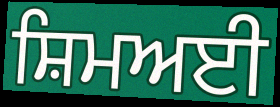
ਸ਼ਿਮਅਈ